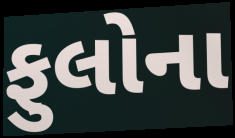
ફુલોના